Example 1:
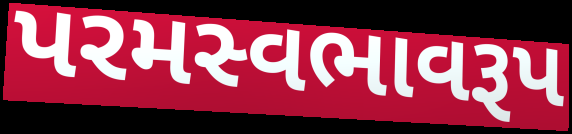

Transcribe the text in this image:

પરમસ્વભાવરૂપ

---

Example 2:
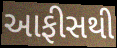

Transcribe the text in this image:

આફીસથી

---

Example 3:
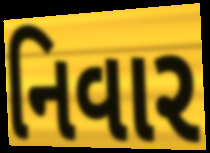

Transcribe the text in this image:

નિવાર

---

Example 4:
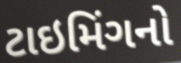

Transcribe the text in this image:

ટાઇમિંગનો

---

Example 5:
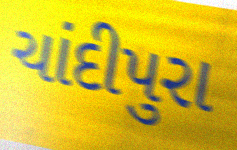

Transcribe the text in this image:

ચાંદીપુરા